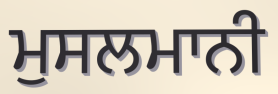
ਮੁਸਲਮਾਨੀ